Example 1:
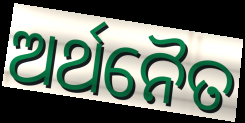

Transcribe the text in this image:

ଅର୍ଥନୈତ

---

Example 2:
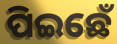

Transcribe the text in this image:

ପିଇଛେଁ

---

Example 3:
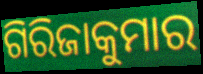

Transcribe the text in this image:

ଗିରିଜାକୁମାର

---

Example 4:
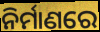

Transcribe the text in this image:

ନିର୍ମାଣରେ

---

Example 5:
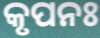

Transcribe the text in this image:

କୃପନଃ